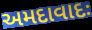
અમદાવાદઃ